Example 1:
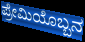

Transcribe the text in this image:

ಪ್ರೇಮಿಯೊಬ್ಬನ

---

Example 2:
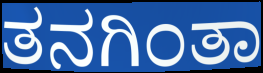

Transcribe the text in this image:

ತನಗಿಂತಾ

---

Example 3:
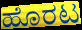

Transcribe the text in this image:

ಹೊರಟ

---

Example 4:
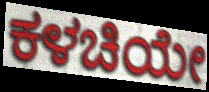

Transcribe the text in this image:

ಕಳಚಿಯೇ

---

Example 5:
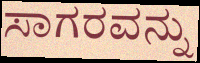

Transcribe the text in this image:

ಸಾಗರವನ್ನು